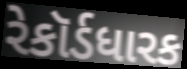
રેકૉર્ડધારક